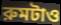
রুমটাও